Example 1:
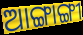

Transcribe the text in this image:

ଆଙ୍ଗାଙ୍ଗୀ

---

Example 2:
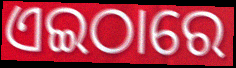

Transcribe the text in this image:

ଏଇଠାରେ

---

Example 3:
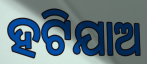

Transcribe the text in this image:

ହଟିଯାଅ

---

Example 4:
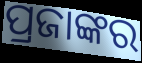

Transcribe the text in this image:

ପ୍ରଜାଙ୍କର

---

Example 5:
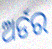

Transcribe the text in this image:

ଅର୍ଡର